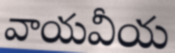
వాయవీయ